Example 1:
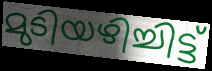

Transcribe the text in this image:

മുടിയഴിച്ചിട്ട്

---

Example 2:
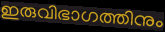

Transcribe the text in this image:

ഇരുവിഭാഗത്തിനും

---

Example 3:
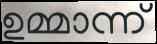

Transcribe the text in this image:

ഉമ്മാന്ന്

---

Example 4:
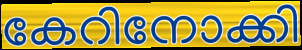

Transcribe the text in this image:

കേറിനോക്കി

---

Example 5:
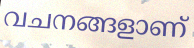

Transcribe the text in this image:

വചനങ്ങളാണ്